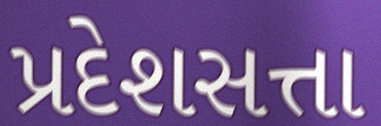
પ્રદેશસત્તા